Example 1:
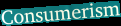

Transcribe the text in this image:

Consumerism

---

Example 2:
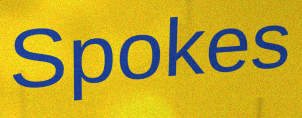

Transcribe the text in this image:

Spokes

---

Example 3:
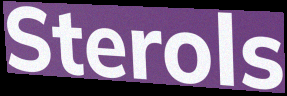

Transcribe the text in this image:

Sterols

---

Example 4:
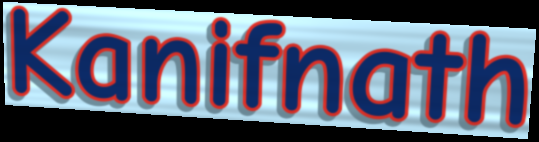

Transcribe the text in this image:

Kanifnath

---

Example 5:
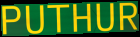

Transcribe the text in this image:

PUTHUR